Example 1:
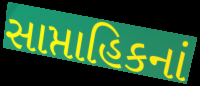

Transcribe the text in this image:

સાપ્તાહિકનાં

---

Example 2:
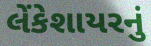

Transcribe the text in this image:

લેંકેશાયરનું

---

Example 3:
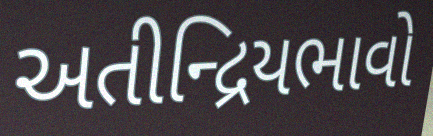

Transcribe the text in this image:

અતીન્દ્રિયભાવો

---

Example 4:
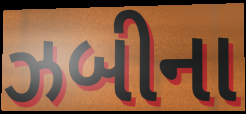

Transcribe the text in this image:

ઝબીના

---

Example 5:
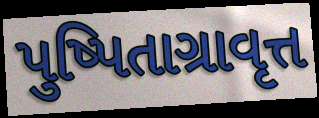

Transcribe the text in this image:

પુષ્પિતાગ્રાવૃત્ત